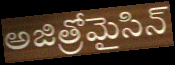
అజిత్రోమైసిన్